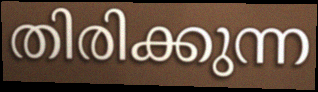
തിരിക്കുന്ന